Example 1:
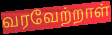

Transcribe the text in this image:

வரவேற்றாள்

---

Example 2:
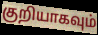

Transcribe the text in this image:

குறியாகவும்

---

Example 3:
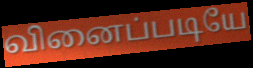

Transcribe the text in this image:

வினைப்படியே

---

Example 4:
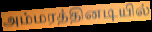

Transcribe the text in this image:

அம்மரத்தினடியில்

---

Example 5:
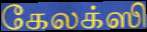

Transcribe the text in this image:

கேலக்ஸி